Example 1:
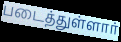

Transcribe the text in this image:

படைத்துள்ளார்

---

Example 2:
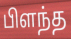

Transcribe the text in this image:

பிளந்த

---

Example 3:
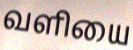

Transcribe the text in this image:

வளியை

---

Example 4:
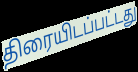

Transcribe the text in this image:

திரையிடப்பட்டது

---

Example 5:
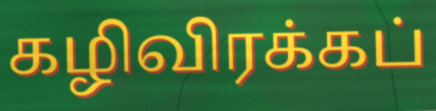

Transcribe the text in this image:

கழிவிரக்கப்